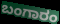
ಬಂಗಾರಂ